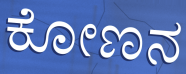
ಕೋಣನ